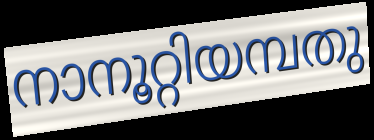
നാനൂറ്റിയമ്പതു